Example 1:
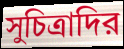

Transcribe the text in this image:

সুচিত্রাদির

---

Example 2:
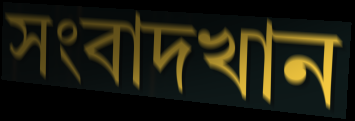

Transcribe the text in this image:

সংবাদখান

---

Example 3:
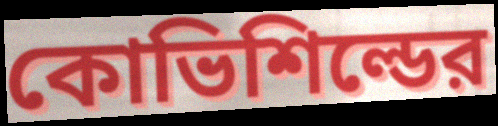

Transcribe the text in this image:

কোভিশিল্ডের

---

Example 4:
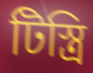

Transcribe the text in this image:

টিস্ত্রি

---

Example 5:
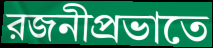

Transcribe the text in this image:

রজনীপ্রভাতে